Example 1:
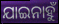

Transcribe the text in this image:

ଯାଇନାହୁଁ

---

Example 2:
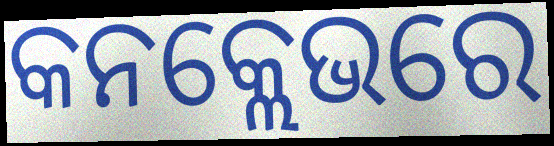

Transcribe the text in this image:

କନକ୍ଲେଭରେ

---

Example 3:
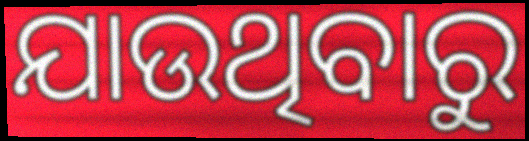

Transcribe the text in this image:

ଯାଉଥିବାରୁ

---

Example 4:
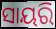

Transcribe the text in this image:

ସାୟରି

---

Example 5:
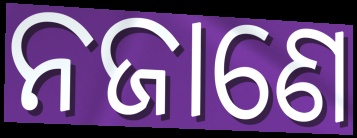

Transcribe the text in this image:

ନଜାଣେ